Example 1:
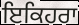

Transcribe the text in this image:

ਇਕਿਹਰਾ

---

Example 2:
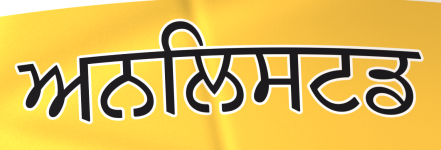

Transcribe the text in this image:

ਅਨਲਿਸਟਡ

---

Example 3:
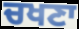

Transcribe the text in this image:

ਚਖਣਾ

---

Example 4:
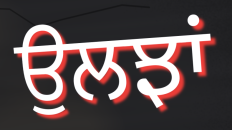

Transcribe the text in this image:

ਉਲਝਾਂ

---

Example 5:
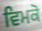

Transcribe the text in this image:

ਵਿਮਕੋ